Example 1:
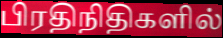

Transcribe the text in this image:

பிரதிநிதிகளில்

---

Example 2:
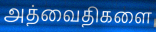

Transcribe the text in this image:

அத்வைதிகளை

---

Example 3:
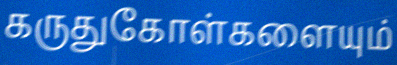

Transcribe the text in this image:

கருதுகோள்களையும்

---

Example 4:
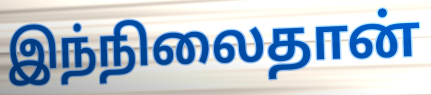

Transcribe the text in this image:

இந்நிலைதான்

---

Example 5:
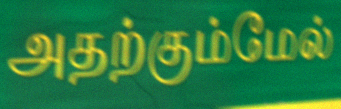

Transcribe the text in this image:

அதற்கும்மேல்